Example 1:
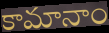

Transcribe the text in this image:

కామానాం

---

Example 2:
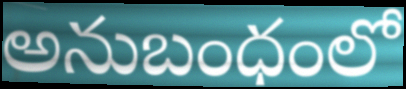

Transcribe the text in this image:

అనుబంధంలో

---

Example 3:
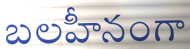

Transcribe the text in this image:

బలహీనంగా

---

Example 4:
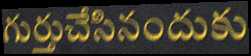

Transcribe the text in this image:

గుర్తుచేసినందుకు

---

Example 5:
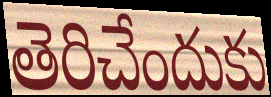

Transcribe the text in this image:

తెరిచేందుకు